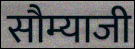
सौम्याजी